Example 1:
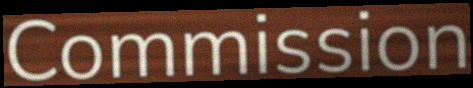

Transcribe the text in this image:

Commission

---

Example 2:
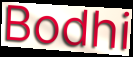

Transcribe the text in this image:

Bodhi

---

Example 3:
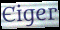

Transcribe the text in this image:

Eiger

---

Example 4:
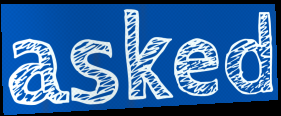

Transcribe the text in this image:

asked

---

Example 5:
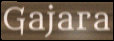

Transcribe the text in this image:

Gajara